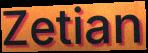
Zetian